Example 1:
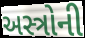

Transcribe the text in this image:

અસ્ત્રોની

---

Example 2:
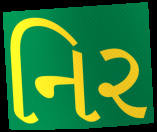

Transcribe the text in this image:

નિર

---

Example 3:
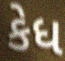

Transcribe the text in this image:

કેધ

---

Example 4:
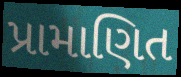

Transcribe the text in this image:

પ્રામાણિત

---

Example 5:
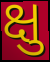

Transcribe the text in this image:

ક્ષુ